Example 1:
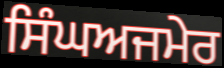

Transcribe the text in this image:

ਸਿੰਘਅਜਮੇਰ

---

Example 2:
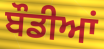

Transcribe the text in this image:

ਬੌਡੀਆਂ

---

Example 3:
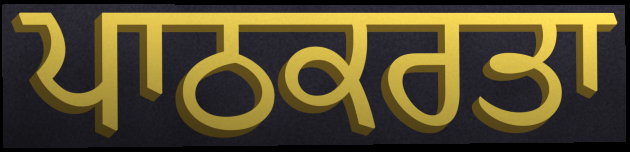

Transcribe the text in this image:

ਪਾਠਕਰਤਾ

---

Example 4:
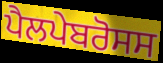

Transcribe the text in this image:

ਪੈਲਪੇਬਰੋਸਸ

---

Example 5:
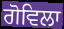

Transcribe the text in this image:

ਗੋਵਿਲਾ